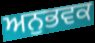
ਅਨੁਭਵਕ